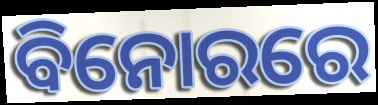
ବିନୋରରେ